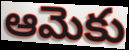
ఆమెకు